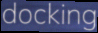
docking